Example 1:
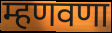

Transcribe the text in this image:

म्हणवणा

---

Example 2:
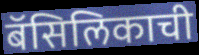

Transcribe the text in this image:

बॅसिलिकाची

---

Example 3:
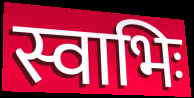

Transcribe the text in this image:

स्वाभिः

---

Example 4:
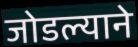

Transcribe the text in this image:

जोडल्याने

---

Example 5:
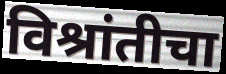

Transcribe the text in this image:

विश्रांतीचा